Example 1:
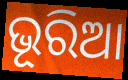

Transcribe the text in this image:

ଭୂରିଆ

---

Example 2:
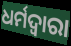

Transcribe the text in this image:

ଧର୍ମଦ୍ୱାରା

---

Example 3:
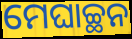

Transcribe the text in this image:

ମେଘାଚ୍ଛନ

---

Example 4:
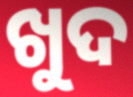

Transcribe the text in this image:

ଖୁଦ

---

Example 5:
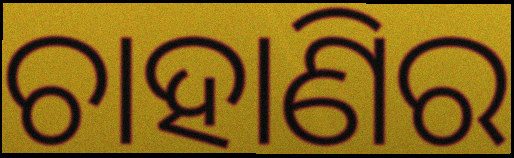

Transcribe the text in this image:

ଚାହାଣିର